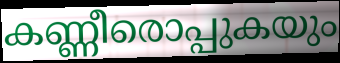
കണ്ണീരൊപ്പുകയും